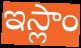
ఇస్లాం